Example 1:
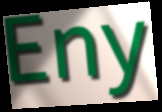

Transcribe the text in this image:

Eny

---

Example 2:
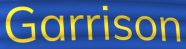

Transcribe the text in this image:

Garrison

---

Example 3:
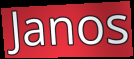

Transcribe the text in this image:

Janos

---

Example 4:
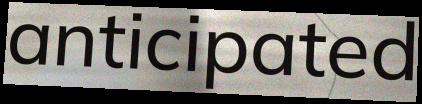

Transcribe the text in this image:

anticipated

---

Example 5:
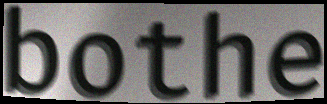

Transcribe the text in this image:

bothe